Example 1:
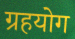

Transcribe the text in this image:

ग्रहयोग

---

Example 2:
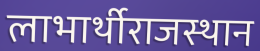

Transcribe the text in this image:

लाभार्थीराजस्थान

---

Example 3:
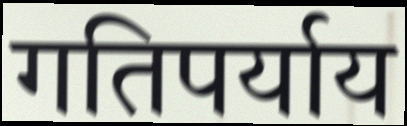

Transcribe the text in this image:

गतिपर्याय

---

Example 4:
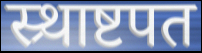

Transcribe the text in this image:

स्र्थाष्टपत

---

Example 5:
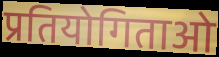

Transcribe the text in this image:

प्रतियोगिताओ